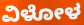
ವಿಳೋಳ